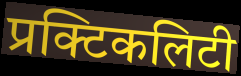
प्रक्टिकलिटी